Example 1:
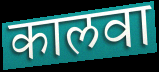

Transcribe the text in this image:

कालवा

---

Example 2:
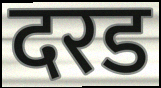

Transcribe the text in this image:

दरड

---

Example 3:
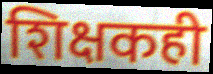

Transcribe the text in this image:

शिक्षकही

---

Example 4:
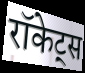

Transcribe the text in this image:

रॉकेट्स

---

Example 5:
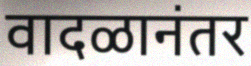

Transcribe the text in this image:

वादळानंतर